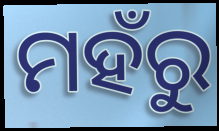
ମହଁରୁ